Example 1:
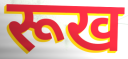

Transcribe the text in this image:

रूख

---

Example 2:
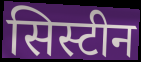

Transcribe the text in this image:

सिस्टीन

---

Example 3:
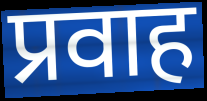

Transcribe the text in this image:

प्रवाह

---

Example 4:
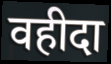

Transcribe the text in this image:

वहीदा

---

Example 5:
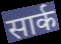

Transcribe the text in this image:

सार्क